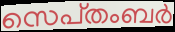
സെപ്‌തംബർ